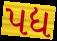
પદ્ય